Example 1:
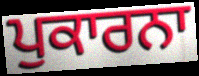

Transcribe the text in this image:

ਪੁਕਾਰਨਾ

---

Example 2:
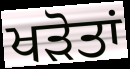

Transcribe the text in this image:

ਖੜੋਤਾਂ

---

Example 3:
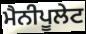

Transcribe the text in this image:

ਮੈਨੀਪੂਲੇਟ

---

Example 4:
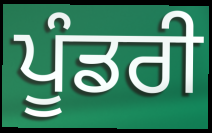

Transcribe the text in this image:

ਪੂੰਡਰੀ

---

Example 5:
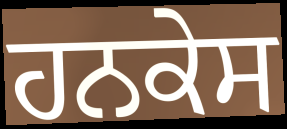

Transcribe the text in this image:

ਹਨਕੇਸ